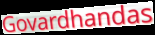
Govardhandas